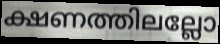
ക്ഷണത്തിലല്ലോ